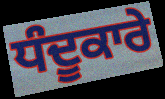
ਧੰਦੂਕਾਰੇ